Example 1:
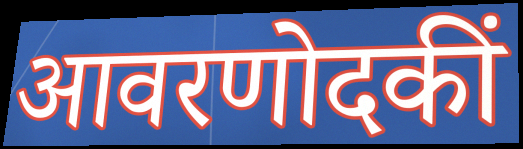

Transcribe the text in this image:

आवरणोदकीं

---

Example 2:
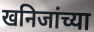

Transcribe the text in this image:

खनिजांच्या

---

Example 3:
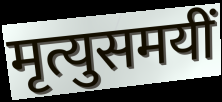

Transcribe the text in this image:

मृत्युसमयीं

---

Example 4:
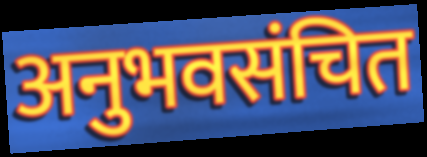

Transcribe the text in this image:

अनुभवसंचित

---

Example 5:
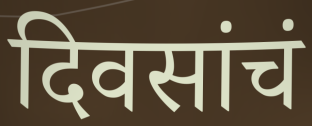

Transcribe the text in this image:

दिवसांचं